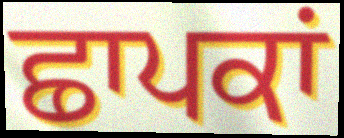
ਛਾਪਕਾਂ